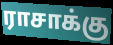
ராசாக்கு